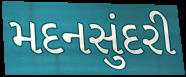
મદનસુંદરી